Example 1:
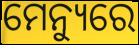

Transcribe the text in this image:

ମେନ୍ୟୁରେ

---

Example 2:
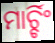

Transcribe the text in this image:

ମାର୍ଚ୍ଚିଂ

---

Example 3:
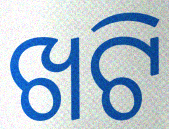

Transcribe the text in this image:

ଖଟି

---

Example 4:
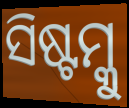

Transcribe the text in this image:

ସିଷ୍ଟମ୍କୁ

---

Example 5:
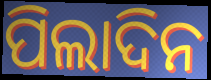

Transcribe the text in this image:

ପିଲାଦିନ